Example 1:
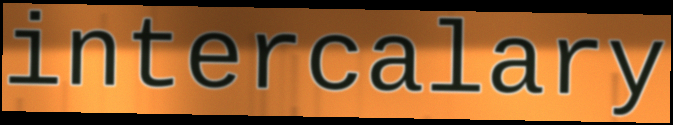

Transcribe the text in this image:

intercalary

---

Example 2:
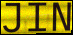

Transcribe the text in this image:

JIN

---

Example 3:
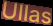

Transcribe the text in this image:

Ullas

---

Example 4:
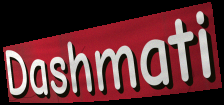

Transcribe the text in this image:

Dashmati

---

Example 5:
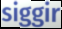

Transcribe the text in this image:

siggir